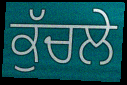
ਕੁੱਚਲੇ